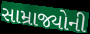
સામ્રાજ્યોની